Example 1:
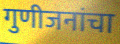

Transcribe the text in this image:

गुणीजनांचा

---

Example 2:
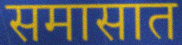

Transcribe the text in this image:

समासात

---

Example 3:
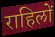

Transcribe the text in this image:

राहिलों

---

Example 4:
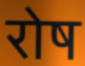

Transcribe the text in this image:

रोष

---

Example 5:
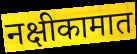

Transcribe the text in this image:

नक्षीकामात